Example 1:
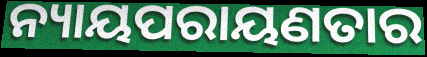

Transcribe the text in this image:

ନ୍ୟାୟପରାୟଣତାର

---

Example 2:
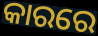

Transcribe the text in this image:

କାରରେ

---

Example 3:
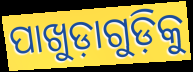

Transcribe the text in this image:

ପାଖୁଡ଼ାଗୁଡ଼ିକୁ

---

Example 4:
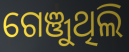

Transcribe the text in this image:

ଗେଞ୍ଜୁଥିଲି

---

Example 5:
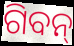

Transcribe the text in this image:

ଗିବନ୍